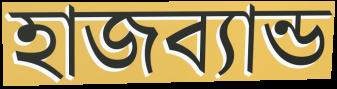
হাজব্যান্ড